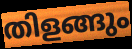
തിളങ്ങും